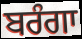
ਬਰੰਗਾ